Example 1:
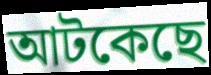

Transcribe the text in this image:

আটকেছে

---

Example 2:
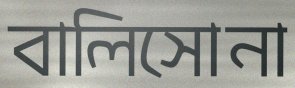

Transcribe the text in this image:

বালিসোনা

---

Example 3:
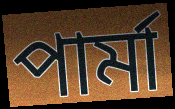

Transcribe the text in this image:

পার্মা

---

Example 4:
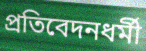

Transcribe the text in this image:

প্রতিবেদনধর্মী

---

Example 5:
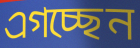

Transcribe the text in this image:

এগচ্ছেন